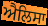
ਐਲਿਸਾ